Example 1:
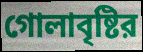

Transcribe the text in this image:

গোলাবৃষ্টির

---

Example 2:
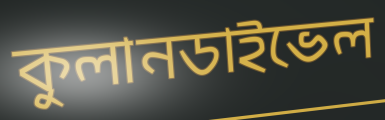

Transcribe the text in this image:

কুলানডাইভেল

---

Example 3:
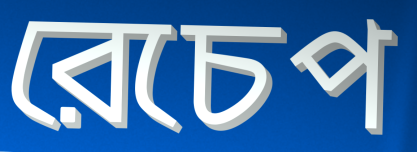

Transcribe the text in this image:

রেচেপ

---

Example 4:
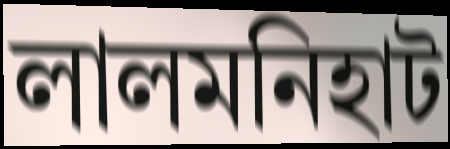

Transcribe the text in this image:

লালমনিহাট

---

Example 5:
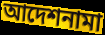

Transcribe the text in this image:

আদেশনামা